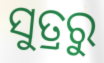
ସୁତ୍ରରୁ